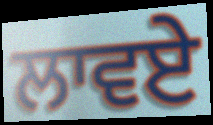
ਲਾਵਏ